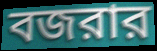
বজরার